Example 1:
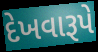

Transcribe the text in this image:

દેખવારૂપે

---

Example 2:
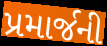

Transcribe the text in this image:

પ્રમાર્જની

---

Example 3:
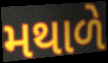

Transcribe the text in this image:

મથાળે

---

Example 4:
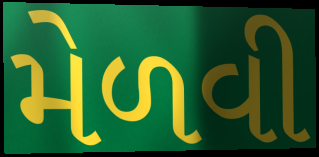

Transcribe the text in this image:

મેળવી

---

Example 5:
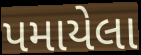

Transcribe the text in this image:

પમાયેલા